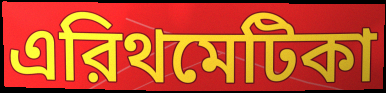
এরিথমেটিকা